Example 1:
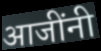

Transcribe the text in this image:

आजींनी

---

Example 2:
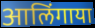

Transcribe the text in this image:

आलिंगाया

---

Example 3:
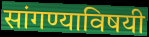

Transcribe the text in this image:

सांगण्याविषयी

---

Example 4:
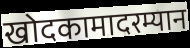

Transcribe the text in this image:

खोदकामादरम्यान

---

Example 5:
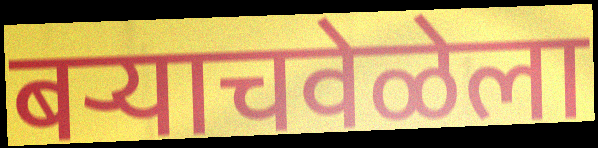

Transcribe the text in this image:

बर्‍याचवेळेला